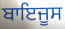
ਬਾਇਜੂਸ